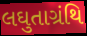
લઘુતાગ્રંથિ